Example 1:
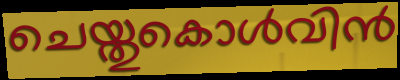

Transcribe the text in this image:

ചെയ്തുകൊൾവിൻ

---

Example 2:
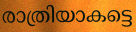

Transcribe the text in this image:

രാത്രിയാകട്ടെ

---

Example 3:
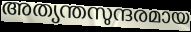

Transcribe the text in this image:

അത്യന്തസുന്ദരമായ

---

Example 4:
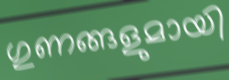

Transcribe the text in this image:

ഗുണങ്ങളുമായി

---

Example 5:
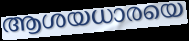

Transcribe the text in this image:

ആശയധാരയെ